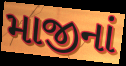
માજીનાં